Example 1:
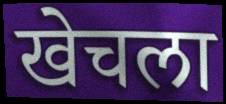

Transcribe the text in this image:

खेचला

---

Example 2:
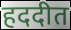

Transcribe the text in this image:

हददीत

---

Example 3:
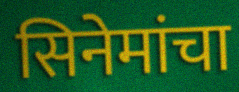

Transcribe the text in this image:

सिनेमांचा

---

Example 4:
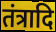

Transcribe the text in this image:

तंत्रादि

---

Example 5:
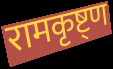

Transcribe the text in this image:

रामकृष्ट्ण